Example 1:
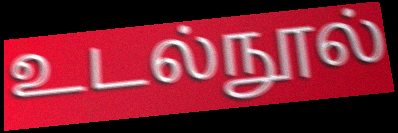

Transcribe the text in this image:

உடல்நூல்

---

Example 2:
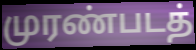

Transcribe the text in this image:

முரண்படத்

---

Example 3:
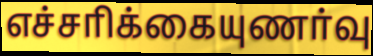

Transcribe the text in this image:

எச்சரிக்கையுணர்வு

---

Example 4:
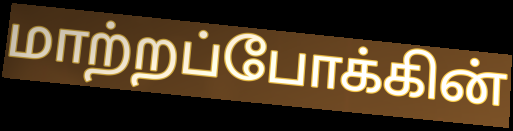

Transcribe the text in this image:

மாற்றப்போக்கின்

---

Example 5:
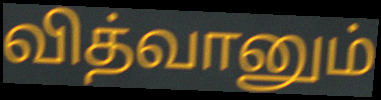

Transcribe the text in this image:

வித்வானும்